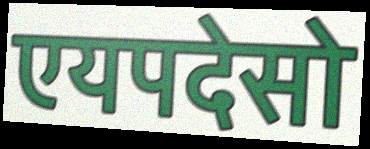
एयपदेसो